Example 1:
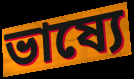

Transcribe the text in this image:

ভাষ্যে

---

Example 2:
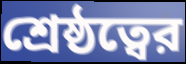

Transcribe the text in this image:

শ্রেষ্ঠত্বের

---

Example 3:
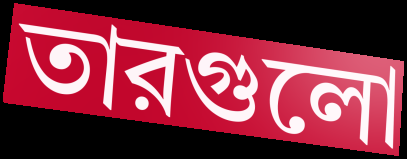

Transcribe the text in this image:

তারগুলো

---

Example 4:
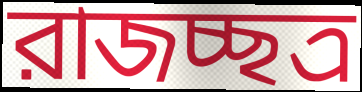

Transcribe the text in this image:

রাজচ্ছত্র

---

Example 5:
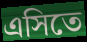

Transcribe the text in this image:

এসিতে